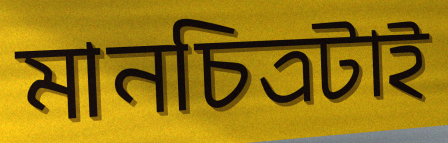
মানচিত্রটাই